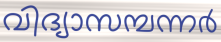
വിദ്യാസമ്പന്നർ